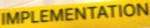
IMPLEMENTATION